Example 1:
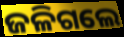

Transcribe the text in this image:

ଜଳିଗଲେ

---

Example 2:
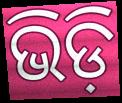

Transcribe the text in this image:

ଭିଡ଼ି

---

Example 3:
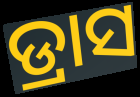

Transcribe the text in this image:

ଡ୍ରାସ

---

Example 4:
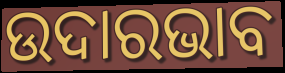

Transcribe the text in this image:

ଉଦାରଭାବ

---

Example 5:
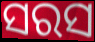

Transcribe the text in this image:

ସରସ